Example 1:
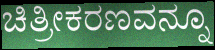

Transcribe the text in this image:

ಚಿತ್ರೀಕರಣವನ್ನೂ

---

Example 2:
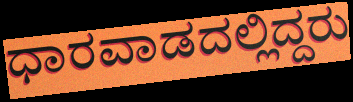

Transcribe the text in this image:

ಧಾರವಾಡದಲ್ಲಿದ್ದರು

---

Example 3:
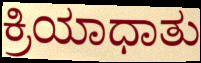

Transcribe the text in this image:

ಕ್ರಿಯಾಧಾತು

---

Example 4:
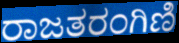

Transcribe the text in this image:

ರಾಜತರಂಗಿಣಿ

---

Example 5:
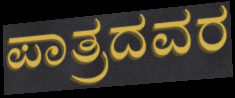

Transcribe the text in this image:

ಪಾತ್ರದವರ